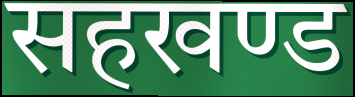
सहखण्ड